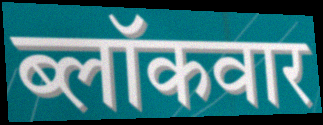
ब्लॉकवार